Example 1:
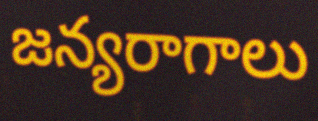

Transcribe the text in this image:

జన్యరాగాలు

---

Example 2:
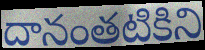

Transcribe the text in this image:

దానంతటికిని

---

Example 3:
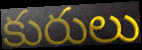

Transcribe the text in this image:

కురులు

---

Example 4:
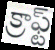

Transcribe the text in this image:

క్రాఫ్ట్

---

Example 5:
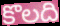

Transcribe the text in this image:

కొలది